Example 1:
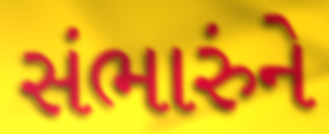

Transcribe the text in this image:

સંભારુંને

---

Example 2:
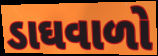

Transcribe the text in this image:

ડાઘવાળો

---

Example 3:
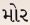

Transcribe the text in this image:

મોર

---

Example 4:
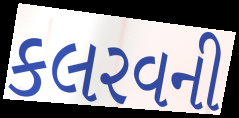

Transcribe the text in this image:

કલરવની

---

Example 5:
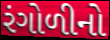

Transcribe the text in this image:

રંગોળીનો